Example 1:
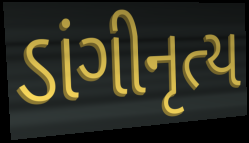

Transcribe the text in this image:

ડાંગીનૃત્ય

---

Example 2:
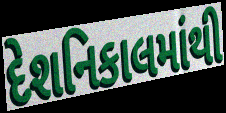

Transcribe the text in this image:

દેશનિકાલમાંથી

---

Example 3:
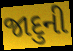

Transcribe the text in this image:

જાદુની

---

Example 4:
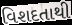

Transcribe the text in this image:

વિશદતાથી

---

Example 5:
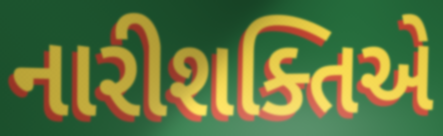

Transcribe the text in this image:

નારીશક્તિએ